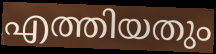
എത്തിയതും